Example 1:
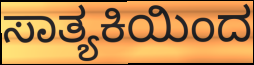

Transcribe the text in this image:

ಸಾತ್ಯಕಿಯಿಂದ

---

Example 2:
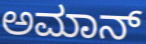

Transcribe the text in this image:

ಅಮಾನ್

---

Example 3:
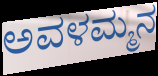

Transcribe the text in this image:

ಅವಳಮ್ಮನ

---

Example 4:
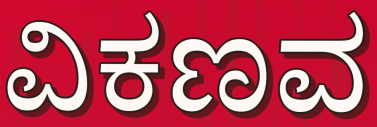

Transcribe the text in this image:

ವಿಕಣವ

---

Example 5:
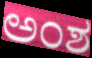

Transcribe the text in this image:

ಅಂಶ